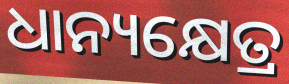
ଧାନ୍ୟକ୍ଷେତ୍ର